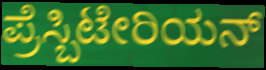
ಪ್ರೆಸ್ಬಿಟೇರಿಯನ್